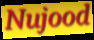
Nujood